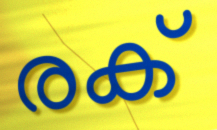
രക്